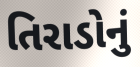
તિરાડોનું